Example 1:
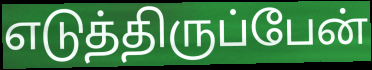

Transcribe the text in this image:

எடுத்திருப்பேன்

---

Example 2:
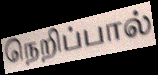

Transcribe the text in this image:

நெறிப்பால்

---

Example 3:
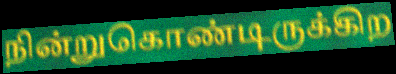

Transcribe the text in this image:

நின்றுகொண்டிருக்கிற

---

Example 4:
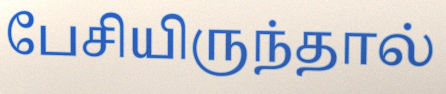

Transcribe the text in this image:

பேசியிருந்தால்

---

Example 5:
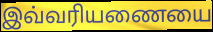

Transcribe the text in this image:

இவ்வரியணையை